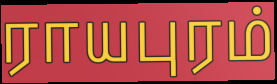
ராயபுரம்